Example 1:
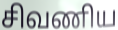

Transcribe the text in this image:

சிவணிய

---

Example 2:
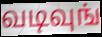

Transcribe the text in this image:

வடிவுங்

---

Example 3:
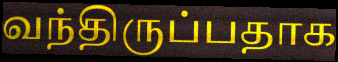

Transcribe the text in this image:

வந்திருப்பதாக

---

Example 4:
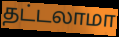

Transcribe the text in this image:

தட்டலாமா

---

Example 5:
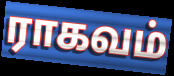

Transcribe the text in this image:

ராகவம்